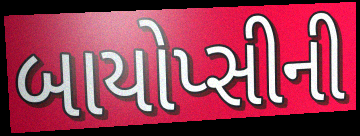
બાયોપ્સીની